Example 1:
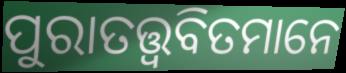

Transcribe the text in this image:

ପୁରାତତ୍ତ୍ୱବିତମାନେ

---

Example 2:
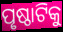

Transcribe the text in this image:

ପୃଷ୍ଠାଟିକୁ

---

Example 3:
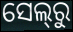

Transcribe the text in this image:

ସେଲ୍‌ରୁ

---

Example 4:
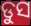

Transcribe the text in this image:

ଡୁସ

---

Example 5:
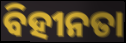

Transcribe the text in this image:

ବିହୀନତା